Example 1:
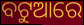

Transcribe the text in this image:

ବଟୁଆରେ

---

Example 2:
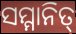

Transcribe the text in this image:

ସମ୍ମାନିତ୍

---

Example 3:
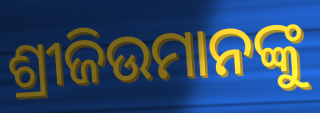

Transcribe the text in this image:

ଶ୍ରୀଜିଉମାନଙ୍କୁ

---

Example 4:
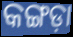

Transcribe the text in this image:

କଙ୍ଗଡ଼ା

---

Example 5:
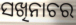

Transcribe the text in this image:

ସଖିନାଚର